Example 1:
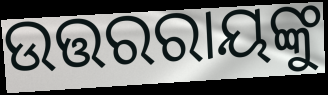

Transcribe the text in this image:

ଉତ୍ତରରାୟଙ୍କୁ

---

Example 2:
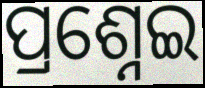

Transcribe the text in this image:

ପ୍ରଶ୍ନେଇ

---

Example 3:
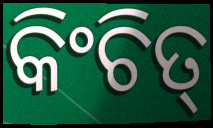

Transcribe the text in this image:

କିଂଚିତ୍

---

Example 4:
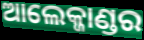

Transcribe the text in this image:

ଆଲେକ୍ଜାଣ୍ଡର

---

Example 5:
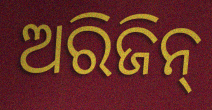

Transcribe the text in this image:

ଅରିଜିନ୍